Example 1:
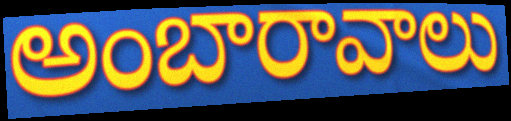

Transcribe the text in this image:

అంబారావాలు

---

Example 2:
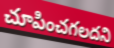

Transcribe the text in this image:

చూపించగలదని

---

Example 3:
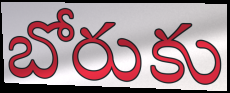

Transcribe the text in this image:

బోరుకు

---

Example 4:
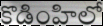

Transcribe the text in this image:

కొడింహిలో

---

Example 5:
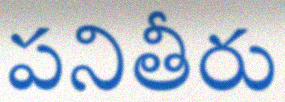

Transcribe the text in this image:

పనితీరు